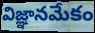
విజ్ఞానమేకం